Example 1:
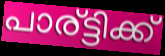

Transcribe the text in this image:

പാര്ട്ടിക്ക്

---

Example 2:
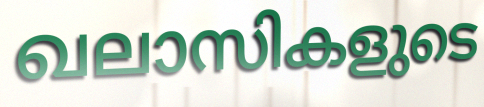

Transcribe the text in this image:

ഖലാസികളുടെ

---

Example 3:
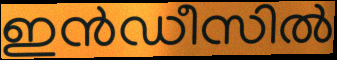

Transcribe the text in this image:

ഇൻഡീസിൽ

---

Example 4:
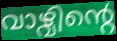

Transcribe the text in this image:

വാഴ്വിന്റെ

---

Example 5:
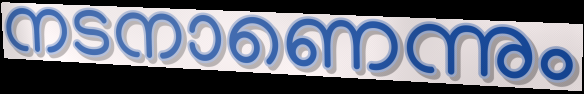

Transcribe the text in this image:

നടനാണെന്നും